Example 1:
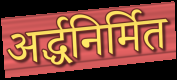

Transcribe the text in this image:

अर्द्धनिर्मित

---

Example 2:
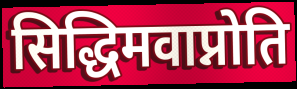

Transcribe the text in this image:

सिद्धिमवाप्नोति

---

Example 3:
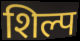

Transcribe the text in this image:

शिल्प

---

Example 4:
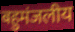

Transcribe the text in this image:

बहुमंजलीय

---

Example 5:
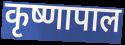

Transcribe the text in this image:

कृष्णापाल